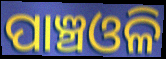
ପାଞ୍ଚଓଳି